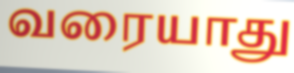
வரையாது